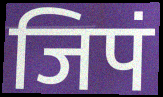
जिपं